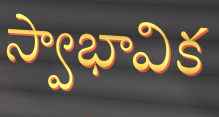
స్వాభావిక